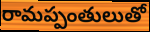
రామప్పంతులుతో